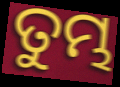
ତୁମ୍ଭ